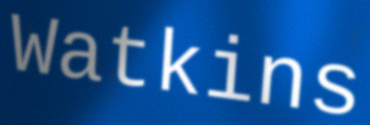
Watkins